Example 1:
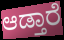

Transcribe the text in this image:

ಆಡ್ತಾರೆ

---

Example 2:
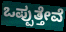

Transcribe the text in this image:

ಒಪ್ಪುತ್ತೇವೆ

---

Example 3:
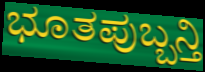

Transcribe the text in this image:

ಭೂತಪುಬ್ಬನ್ತಿ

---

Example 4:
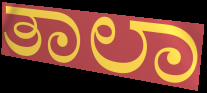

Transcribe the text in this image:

ತಾಲಾ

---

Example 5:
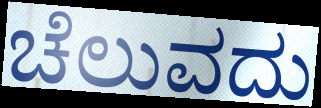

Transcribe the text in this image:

ಚೆಲುವದು